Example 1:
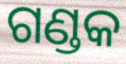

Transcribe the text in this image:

ଗଣ୍ଡକ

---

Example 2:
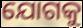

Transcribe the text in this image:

ଯୋଗକୁ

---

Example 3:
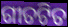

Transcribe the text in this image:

ଗୀତଟିତ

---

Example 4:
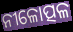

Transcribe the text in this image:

ନୀଳୋତ୍ପଳ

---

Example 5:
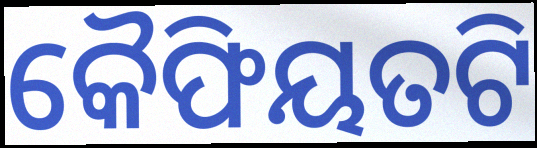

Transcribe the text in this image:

କୈଫିୟତଟି